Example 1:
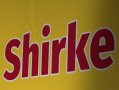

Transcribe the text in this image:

Shirke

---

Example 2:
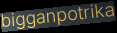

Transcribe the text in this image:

bigganpotrika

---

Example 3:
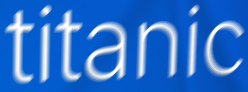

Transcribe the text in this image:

titanic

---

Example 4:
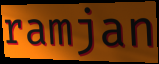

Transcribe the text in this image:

ramjan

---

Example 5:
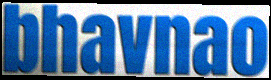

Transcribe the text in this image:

bhavnao